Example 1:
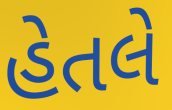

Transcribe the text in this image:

હેતલે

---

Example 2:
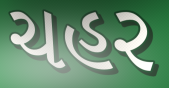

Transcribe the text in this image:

ચહર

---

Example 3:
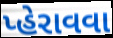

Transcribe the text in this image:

પ્હેરાવવા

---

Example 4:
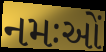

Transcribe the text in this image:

નમઃઓં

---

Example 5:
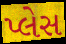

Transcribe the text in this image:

પ્લેસ